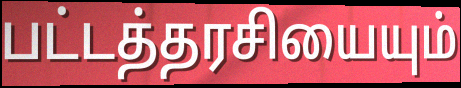
பட்டத்தரசியையும்